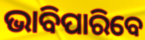
ଭାବିପାରିବେ